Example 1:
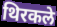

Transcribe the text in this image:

थिरकले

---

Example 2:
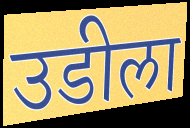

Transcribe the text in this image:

उडीला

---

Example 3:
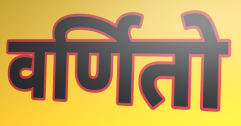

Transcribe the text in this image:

वर्णितो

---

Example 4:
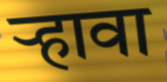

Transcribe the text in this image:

र्‍हावा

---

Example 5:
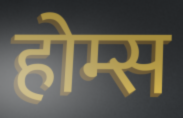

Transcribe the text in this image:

होम्स